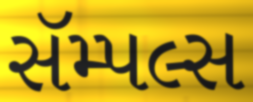
સૅમ્પલ્સ